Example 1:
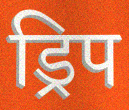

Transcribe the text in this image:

ड्रिप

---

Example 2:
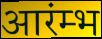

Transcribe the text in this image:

आरंम्भ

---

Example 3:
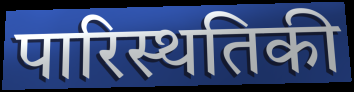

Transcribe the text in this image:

पारिस्थतिकी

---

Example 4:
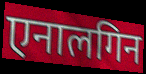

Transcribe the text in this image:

एनालगिन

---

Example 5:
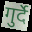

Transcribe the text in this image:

गुर्दे